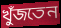
খুঁজতেন